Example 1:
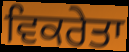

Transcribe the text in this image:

ਵਿਕਰੇਤਾ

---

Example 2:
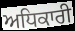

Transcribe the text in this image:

ਅਧਿਕਾਰੀ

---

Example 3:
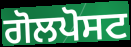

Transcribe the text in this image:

ਗੋਲਪੋਸਟ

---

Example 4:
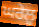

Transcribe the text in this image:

ਘਰੇਲੂ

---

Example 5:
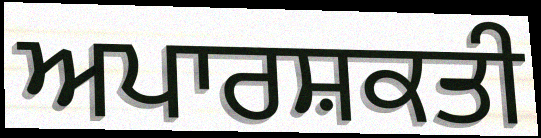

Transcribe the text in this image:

ਅਪਾਰਸ਼ਕਤੀ